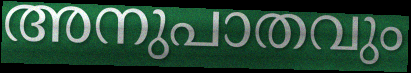
അനുപാതവും